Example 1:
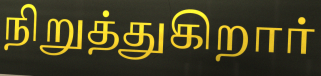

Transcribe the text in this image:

நிறுத்துகிறார்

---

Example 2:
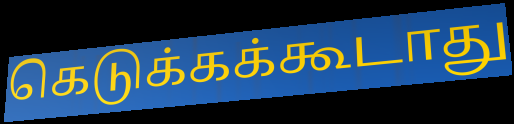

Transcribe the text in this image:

கெடுக்கக்கூடாது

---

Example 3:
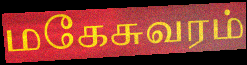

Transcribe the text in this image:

மகேசுவரம்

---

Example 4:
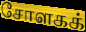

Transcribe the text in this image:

சோளகக்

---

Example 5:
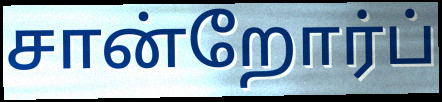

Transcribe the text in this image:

சான்றோர்ப்